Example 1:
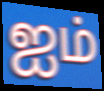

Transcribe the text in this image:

ஐம்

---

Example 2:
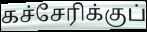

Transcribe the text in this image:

கச்சேரிக்குப்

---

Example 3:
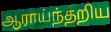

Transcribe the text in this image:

ஆராய்ந்தறிய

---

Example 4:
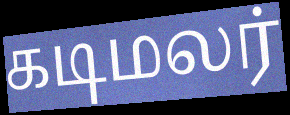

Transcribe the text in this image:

கடிமலர்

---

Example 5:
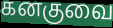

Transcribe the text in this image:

கனகுவை